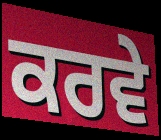
ਕਰਵੇ